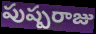
పుష్పరాజు